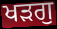
ਖੜਗੁ